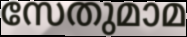
സേതുമാമ